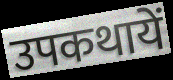
उपकथायें